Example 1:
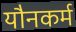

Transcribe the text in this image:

यौनकर्म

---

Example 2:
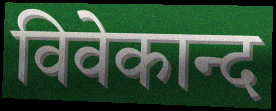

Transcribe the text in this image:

विवेकान्द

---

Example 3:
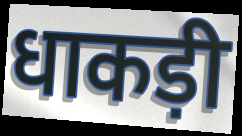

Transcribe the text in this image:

धाकड़ी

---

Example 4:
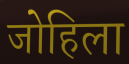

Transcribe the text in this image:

जोहिला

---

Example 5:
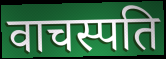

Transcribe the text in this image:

वाचस्पति